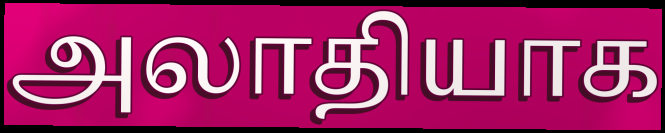
அலாதியாக